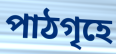
পাঠগৃহে